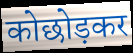
कोछोड़कर